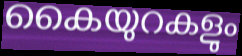
കൈയുറകളും